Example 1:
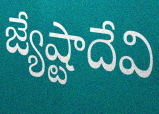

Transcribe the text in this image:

జ్యేష్టాదేవి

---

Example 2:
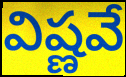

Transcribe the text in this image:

విష్ణవే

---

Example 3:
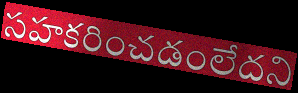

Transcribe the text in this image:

సహకరించడంలేదని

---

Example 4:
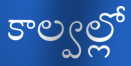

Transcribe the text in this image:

కాల్వల్లో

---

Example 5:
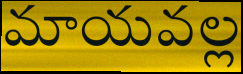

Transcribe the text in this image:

మాయవల్ల